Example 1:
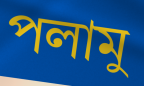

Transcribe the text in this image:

পলামু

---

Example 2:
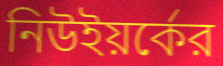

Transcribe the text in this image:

নিউইয়র্কের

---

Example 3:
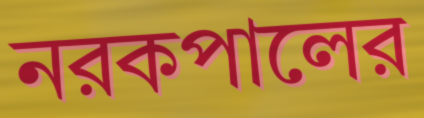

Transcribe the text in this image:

নরকপালের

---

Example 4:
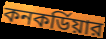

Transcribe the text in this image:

কনকর্ডিয়ার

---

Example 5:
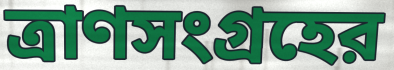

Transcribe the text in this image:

ত্রাণসংগ্রহের